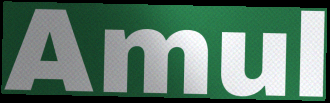
Amul